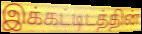
இக்கட்டிடத்தின்